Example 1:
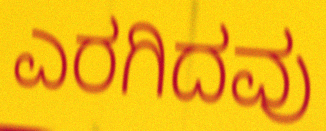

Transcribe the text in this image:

ಎರಗಿದವು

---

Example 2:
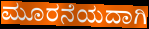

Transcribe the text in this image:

ಮೂರನೆಯದಾಗಿ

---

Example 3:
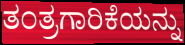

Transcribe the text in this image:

ತಂತ್ರಗಾರಿಕೆಯನ್ನು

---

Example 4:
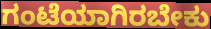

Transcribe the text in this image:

ಗಂಟೆಯಾಗಿರಬೇಕು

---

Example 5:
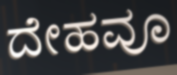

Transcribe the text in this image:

ದೇಹವೂ